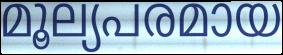
മൂല്യപരമായ